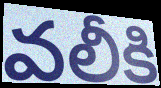
వలీకి